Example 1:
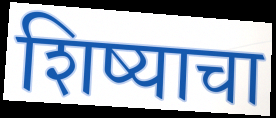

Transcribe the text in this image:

शिष्याचा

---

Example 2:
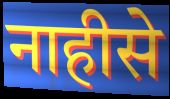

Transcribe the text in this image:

नाहीसे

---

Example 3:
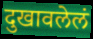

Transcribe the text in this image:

दुखावलेलं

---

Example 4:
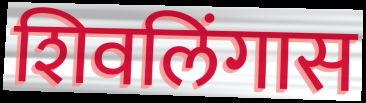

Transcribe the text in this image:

शिवलिंगास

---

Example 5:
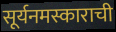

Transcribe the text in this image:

सूर्यनमस्काराची